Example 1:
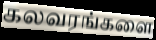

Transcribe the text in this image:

கலவரங்களை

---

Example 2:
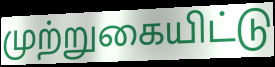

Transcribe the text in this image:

முற்றுகையிட்டு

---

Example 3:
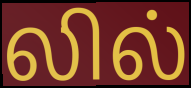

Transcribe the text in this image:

லில்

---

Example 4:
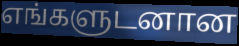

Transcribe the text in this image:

எங்களுடனான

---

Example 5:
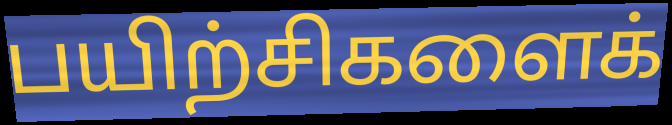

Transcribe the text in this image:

பயிற்சிகளைக்